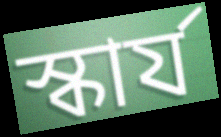
স্কার্য